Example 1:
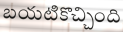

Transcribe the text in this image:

బయటికొచ్చింది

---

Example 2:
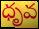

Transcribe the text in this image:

ధృవ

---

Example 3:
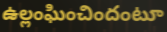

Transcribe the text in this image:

ఉల్లంఘించిందంటూ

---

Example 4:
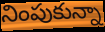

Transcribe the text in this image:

నింపుకున్నా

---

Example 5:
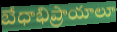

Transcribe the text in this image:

బేధాభిప్రాయాలూ